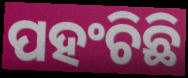
ପହଂଚିଛି